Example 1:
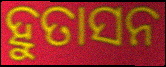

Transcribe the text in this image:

ହୁତାସନ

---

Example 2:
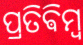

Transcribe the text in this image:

ପ୍ରତିଵିମ୍ବ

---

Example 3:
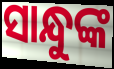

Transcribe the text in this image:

ସାନ୍ଧୁଙ୍କ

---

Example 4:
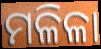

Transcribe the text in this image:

ମଳିଳା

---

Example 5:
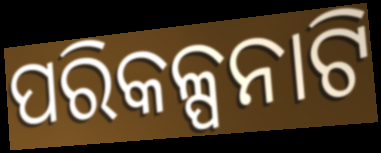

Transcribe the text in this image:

ପରିକଳ୍ପନାଟି